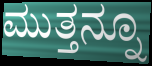
ಮುತ್ತನ್ನೂ